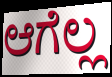
ಆಗೆಲ್ಲ